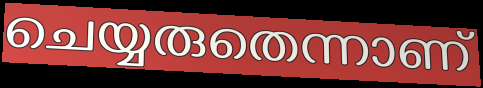
ചെയ്യരുതെന്നാണ്